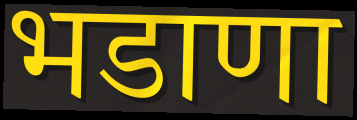
भडाणा